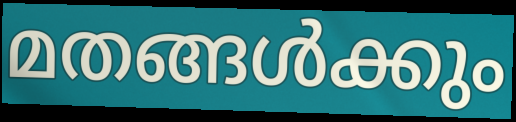
മതങ്ങൾക്കും